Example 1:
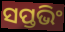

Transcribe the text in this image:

ସପ୍ତଭିଂ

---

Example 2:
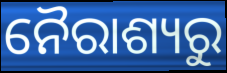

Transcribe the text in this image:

ନୈରାଶ୍ୟରୁ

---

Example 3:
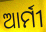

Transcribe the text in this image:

ଆର୍ମୀ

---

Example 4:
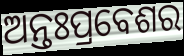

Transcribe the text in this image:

ଅନ୍ତଃପ୍ରବେଶର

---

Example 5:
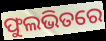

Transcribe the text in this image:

ଫୁଲଭିତରେ